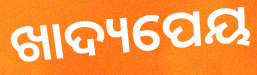
ଖାଦ୍ୟପେୟ